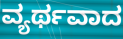
ವ್ಯರ್ಥವಾದ